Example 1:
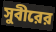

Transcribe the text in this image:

সুবীরের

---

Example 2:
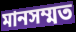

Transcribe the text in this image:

মানসম্মত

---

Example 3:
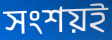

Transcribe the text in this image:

সংশয়ই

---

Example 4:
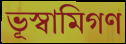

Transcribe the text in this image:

ভূস্বামিগণ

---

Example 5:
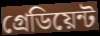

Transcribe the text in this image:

গ্রেডিয়েন্ট